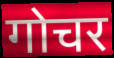
गोचर